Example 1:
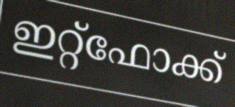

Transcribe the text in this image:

ഇറ്റ്ഫോക്ക്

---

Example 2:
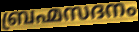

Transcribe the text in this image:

ബ്രഹ്മസദനം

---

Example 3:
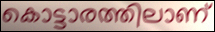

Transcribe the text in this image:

കൊട്ടാരത്തിലാണ്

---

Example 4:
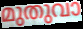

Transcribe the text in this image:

മുതുവാ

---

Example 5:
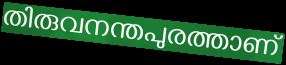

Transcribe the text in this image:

തിരുവനന്തപുരത്താണ്